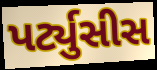
પર્ટ્યુસીસ